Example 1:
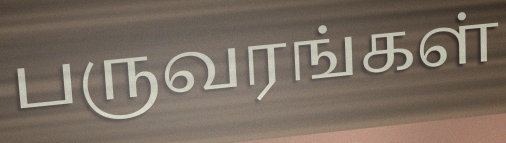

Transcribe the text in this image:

பருவரங்கள்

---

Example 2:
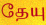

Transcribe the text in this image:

தேயு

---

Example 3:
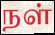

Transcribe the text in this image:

நள்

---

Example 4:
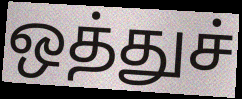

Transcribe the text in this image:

ஒத்துச்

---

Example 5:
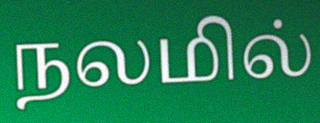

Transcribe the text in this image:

நலமில்